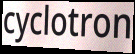
cyclotron